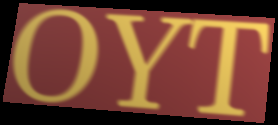
OYT